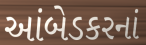
આંબેડકરનાં